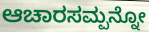
ಆಚಾರಸಮ್ಪನ್ನೋ